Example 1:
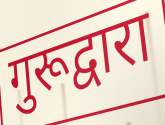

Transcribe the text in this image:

गुरूद्वारा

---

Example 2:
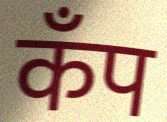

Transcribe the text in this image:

कॅंप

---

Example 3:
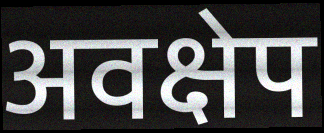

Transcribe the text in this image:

अवक्षेप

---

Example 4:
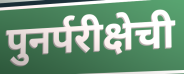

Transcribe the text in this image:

पुनर्परीक्षेची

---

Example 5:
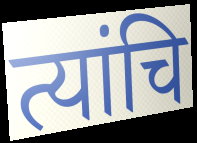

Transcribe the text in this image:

त्यांचि